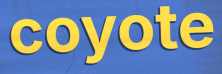
coyote